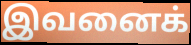
இவனைக்